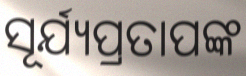
ସୂର୍ଯ୍ୟପ୍ରତାପଙ୍କ